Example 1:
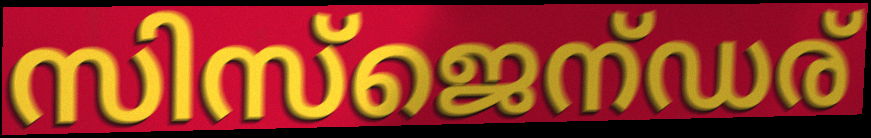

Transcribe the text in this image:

സിസ്ജെന്ഡര്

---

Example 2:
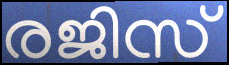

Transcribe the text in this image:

രജിസ്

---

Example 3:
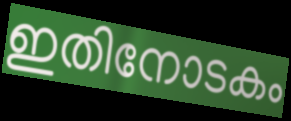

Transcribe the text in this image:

ഇതിനോടകം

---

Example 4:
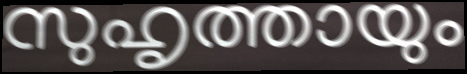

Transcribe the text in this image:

സുഹൃത്തായും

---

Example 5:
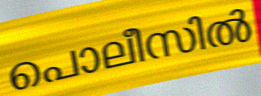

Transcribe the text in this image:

പൊലീസിൽ